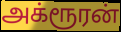
அக்ரூரன்